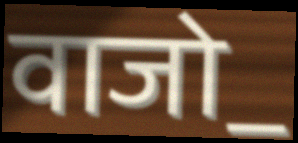
वाजो॒